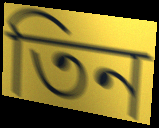
তিন